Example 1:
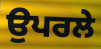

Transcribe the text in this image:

ਉਪਰਲੇ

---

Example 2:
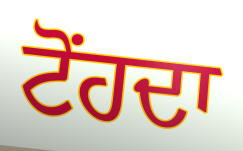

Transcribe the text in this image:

ਟੋਂਹਦਾ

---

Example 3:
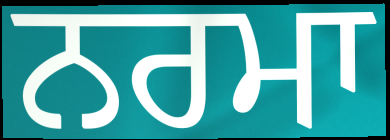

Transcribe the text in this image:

ਨਰਮਾ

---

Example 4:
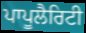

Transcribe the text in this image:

ਪਾਪੂਲੈਰਿਟੀ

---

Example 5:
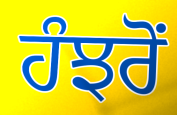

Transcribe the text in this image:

ਹੰਝਰੋਂ